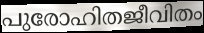
പുരോഹിതജീവിതം